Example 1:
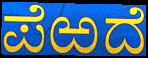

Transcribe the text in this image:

ಪೆಱದೆ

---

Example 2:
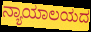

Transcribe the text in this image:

ನ್ಯಾಯಾಲಯದ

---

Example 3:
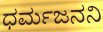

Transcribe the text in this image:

ಧರ್ಮಜನನಿ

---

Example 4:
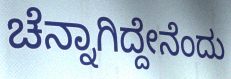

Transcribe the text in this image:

ಚೆನ್ನಾಗಿದ್ದೇನೆಂದು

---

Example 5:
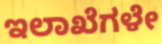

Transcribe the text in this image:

ಇಲಾಖೆಗಳೇ